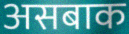
असबाक